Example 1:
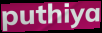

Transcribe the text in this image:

puthiya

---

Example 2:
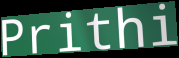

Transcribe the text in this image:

Prithi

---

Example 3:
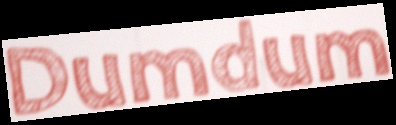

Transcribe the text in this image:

Dumdum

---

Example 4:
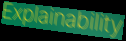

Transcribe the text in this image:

Explainability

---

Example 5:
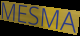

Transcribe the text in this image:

MESMA